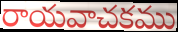
రాయవాచకము